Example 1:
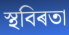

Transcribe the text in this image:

স্থবিৰতা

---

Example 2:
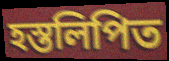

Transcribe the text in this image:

হস্তলিপিত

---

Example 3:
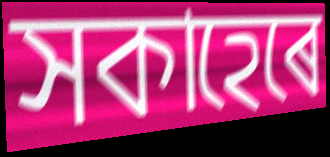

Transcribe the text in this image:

সকাহেৰে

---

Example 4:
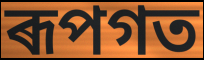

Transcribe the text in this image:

ৰূপগত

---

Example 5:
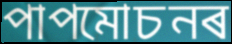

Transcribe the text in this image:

পাপমোচনৰ